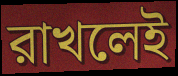
রাখলেই